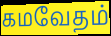
கமவேதம்